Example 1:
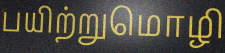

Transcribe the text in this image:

பயிற்றுமொழி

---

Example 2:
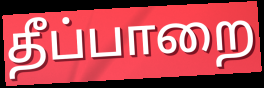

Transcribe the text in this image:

தீப்பாறை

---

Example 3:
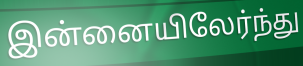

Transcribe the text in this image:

இன்னையிலேர்ந்து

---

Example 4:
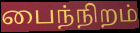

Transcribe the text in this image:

பைந்நிறம்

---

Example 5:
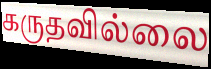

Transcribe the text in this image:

கருதவில்லை